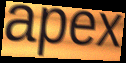
apex